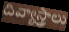
దివ్యాస్త్రాలు